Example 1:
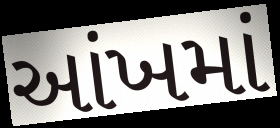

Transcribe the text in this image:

આંખમાં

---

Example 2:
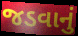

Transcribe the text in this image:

જડવાનું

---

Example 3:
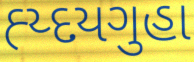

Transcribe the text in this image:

હ્ય્દયગુહા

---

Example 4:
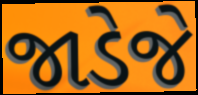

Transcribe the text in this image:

જાડેજે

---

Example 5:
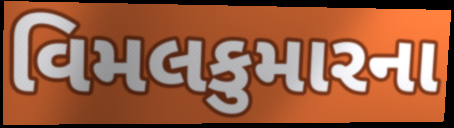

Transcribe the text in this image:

વિમલકુમારના